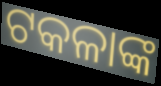
ଟକଳାଙ୍କ